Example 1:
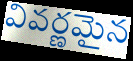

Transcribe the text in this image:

వివర్ణమైన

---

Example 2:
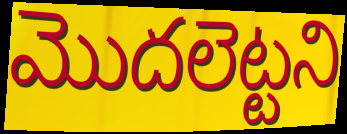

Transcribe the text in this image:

మొదలెట్టని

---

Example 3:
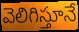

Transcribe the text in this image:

వెలిగిస్తూనే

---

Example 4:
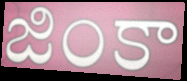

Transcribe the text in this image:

జింకా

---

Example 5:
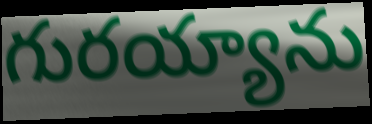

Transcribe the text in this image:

గురయ్యాను